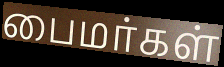
பைமர்கள்